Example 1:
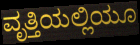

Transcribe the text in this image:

ವೃತ್ತಿಯಲ್ಲಿಯೂ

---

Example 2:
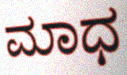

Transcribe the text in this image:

ಮಾಧ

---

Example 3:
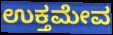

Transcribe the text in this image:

ಉಕ್ತಮೇವ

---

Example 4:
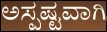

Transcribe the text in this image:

ಅಸ್ಪಷ್ಟವಾಗಿ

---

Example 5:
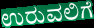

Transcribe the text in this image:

ಉರುವಲಿಗೆ